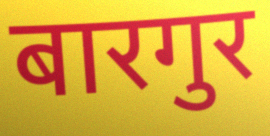
बारगुर